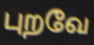
புறவே